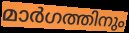
മാർഗത്തിനും